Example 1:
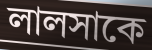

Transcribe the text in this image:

লালসাকে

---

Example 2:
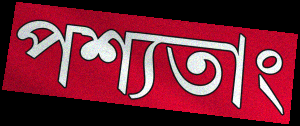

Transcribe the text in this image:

পশ্যতাং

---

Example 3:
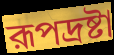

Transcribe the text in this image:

রূপদ্রষ্টা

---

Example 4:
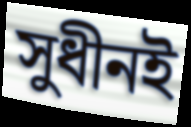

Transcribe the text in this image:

সুধীনই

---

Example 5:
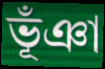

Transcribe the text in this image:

ভূঁঞা